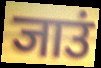
जाउं